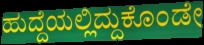
ಹುದ್ದೆಯಲ್ಲಿದ್ದುಕೊಂಡೇ